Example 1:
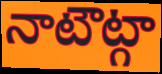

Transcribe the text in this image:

నాటౌట్గా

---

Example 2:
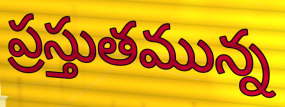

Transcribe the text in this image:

ప్రస్తుతమున్న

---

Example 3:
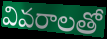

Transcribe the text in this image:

వివరాలతో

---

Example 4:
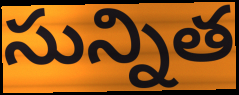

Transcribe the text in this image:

సున్నిత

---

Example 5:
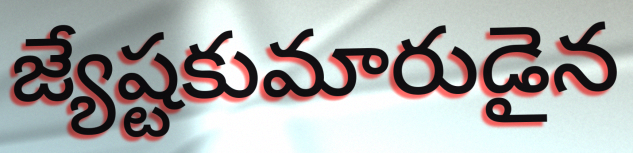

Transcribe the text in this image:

జ్యేష్టకుమారుడైన